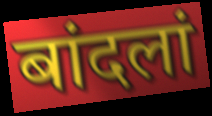
बांदलां